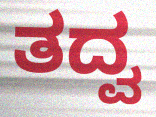
ತದ್ವ